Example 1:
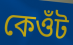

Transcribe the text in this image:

কেওঁট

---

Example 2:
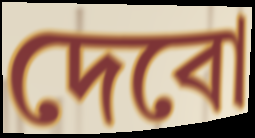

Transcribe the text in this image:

দেবো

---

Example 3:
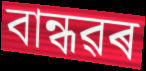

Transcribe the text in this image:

বান্ধৱৰ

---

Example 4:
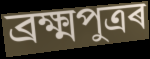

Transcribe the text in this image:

ব্ৰক্ষ্মপুত্ৰৰ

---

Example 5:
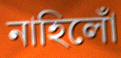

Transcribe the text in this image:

নাহিলোঁ